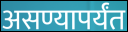
असण्यापर्यंत